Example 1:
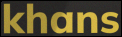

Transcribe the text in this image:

khans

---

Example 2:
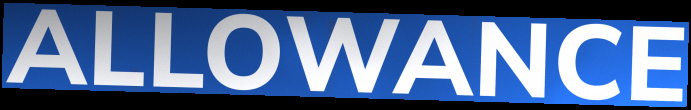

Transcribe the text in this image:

ALLOWANCE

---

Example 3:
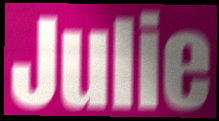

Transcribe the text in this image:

Julie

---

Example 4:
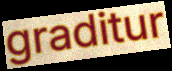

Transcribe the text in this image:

graditur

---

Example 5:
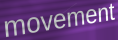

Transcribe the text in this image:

movement